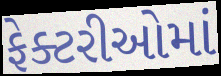
ફેક્ટરીઓમાં